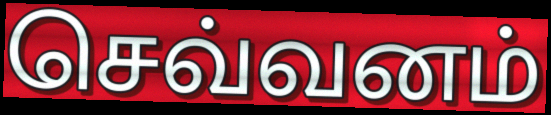
செவ்வனம்